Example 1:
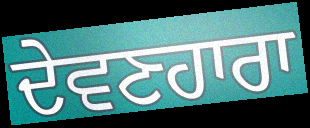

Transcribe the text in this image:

ਦੇਵਣਹਾਰਾ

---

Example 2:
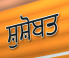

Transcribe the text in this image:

ਸ਼ੁਸ਼ੋਬਤ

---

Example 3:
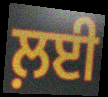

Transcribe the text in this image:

ਲ਼ਈ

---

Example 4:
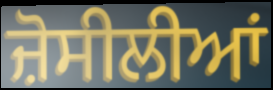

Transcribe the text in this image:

ਜ਼ੋਸੀਲੀਆਂ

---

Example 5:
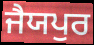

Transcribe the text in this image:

ਜੈਯਪੁਰ